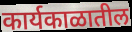
कार्यकाळातील